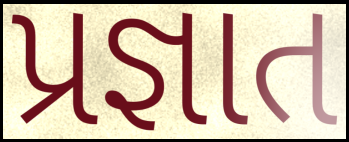
પ્રજ્ઞાત